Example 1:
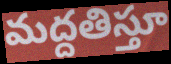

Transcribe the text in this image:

మద్దతిస్తూ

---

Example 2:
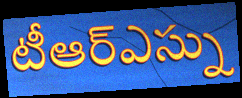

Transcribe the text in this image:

టీఆర్ఎస్ను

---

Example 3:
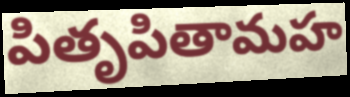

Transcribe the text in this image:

పితృపితామహ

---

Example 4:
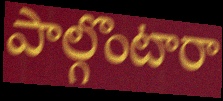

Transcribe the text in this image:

పాల్గొంటారా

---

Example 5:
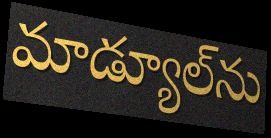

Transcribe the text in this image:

మాడ్యూల్‌ను